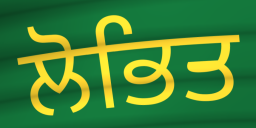
ਲੋਭਿਤ